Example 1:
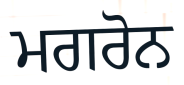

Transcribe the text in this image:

ਮਗਰੋਨ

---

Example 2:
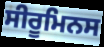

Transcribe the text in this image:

ਸੀਰੂਮਿਨਸ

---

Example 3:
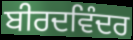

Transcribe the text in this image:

ਬੀਰਦਵਿੰਦਰ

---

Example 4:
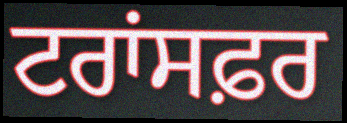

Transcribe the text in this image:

ਟਰਾਂਸਫ਼ਰ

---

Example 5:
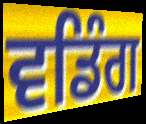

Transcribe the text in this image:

ਵਡਿੰਗ